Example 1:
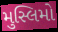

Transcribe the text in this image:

મુસ્લિમો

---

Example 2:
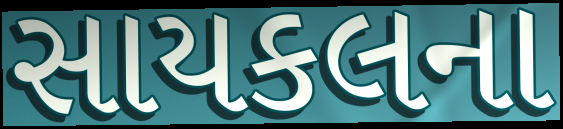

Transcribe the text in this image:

સાયકલના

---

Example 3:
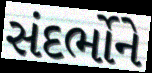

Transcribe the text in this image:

સંદર્ભોને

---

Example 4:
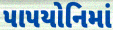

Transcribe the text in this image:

પાપયોનિમાં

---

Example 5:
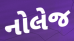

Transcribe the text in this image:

નોલેજ